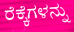
ರೆಕ್ಕೆಗಳನ್ನು